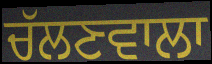
ਚੱਲਣਵਾਲਾ